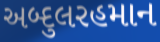
અબ્દુલરહમાન